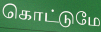
கொட்டுமே